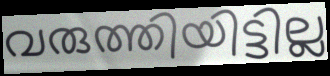
വരുത്തിയിട്ടില്ല